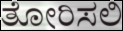
ತೋರಿಸಲಿ